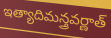
ఇత్యాదిమన్త్రవర్ణాత్